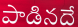
పాడినదే